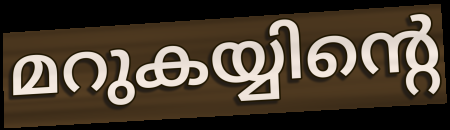
മറുകയ്യിന്റെ